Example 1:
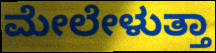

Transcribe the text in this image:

ಮೇಲೇಳುತ್ತಾ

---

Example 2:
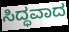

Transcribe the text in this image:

ಸಿದ್ಧವಾದ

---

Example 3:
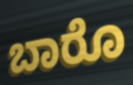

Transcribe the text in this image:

ಬಾರೊ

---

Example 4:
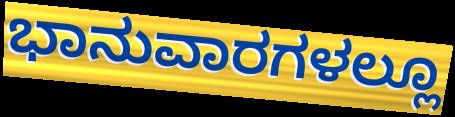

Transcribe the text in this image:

ಭಾನುವಾರಗಳಲ್ಲೂ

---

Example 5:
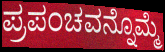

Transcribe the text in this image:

ಪ್ರಪಂಚವನ್ನೊಮ್ಮೆ